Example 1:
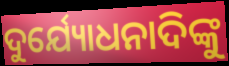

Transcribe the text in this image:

ଦୁର୍ଯ୍ୟୋଧନାଦିଙ୍କୁ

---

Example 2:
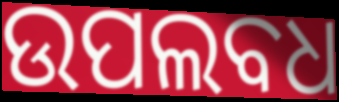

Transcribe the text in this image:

ଉପଲବଧ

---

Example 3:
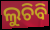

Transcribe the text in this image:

ଲୁଚିବି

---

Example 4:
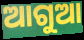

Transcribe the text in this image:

ଆଗୁଆ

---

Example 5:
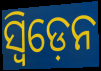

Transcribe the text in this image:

ସ୍ବିଡ଼େନ